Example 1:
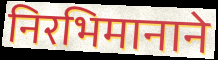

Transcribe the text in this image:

निरभिमानाने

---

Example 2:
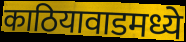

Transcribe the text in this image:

काठियावाडमध्ये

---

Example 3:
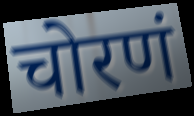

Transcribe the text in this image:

चोरणं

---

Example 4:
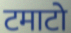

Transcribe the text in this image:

टमाटो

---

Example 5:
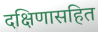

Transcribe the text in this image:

दक्षिणासहित